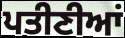
ਪਤੀਣੀਆਂ